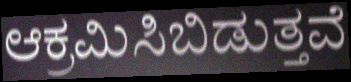
ಆಕ್ರಮಿಸಿಬಿಡುತ್ತವೆ